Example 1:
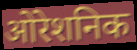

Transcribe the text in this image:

ओरेशनिक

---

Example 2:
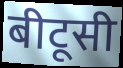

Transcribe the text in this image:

बीटूसी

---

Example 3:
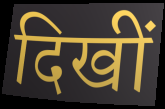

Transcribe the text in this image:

दिखीं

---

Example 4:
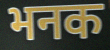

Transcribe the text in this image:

भनक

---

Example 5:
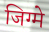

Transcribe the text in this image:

जिग्मे